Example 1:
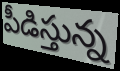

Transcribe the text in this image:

పీడిస్తున్న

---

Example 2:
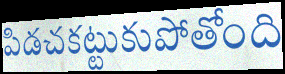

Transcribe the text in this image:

పిడచకట్టుకుపోతోంది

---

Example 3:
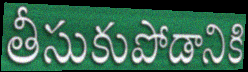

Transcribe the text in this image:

తీసుకుపోడానికి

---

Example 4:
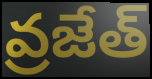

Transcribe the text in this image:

వ్రజేత్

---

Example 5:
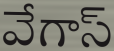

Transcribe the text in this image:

వేగాస్